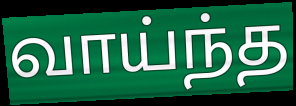
வாய்ந்த